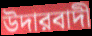
উদারবাদী